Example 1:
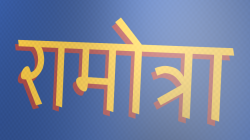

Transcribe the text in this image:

रामोत्रा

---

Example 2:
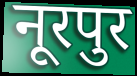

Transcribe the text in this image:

नूरपुर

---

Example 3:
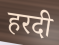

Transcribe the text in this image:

हरदी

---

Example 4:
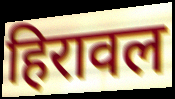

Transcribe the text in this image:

हिरावल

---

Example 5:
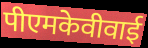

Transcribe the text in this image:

पीएमकेवीवाई